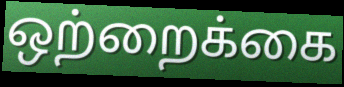
ஒற்றைக்கை